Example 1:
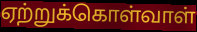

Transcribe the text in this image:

ஏற்றுக்கொள்வாள்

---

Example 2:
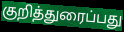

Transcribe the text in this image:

குறித்துரைப்பது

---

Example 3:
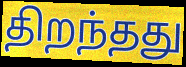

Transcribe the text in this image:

திறந்தது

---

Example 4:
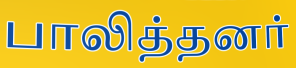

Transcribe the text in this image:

பாலித்தனர்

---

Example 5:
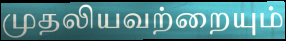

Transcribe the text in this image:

முதலியவற்றையும்